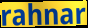
rahnar